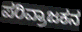
ಪರಿವ್ರಾಜಕನ